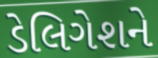
ડેલિગેશને